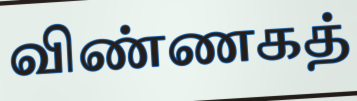
விண்ணகத்